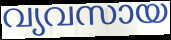
വ്യവസായ